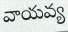
వాయవ్య